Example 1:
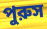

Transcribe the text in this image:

পুরুস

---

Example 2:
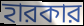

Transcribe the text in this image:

হারকার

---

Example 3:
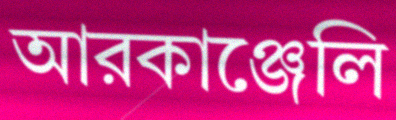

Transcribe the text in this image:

আরকাঞ্জেলি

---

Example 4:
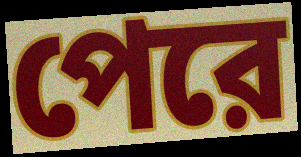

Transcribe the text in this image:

পেরে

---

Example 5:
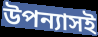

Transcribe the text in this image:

উপন্যাসই